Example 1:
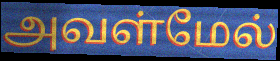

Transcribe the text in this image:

அவள்மேல்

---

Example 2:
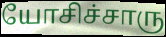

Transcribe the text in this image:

யோசிச்சாரு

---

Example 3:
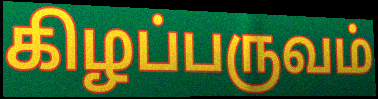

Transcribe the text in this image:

கிழப்பருவம்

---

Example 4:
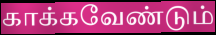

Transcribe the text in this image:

காக்கவேண்டும்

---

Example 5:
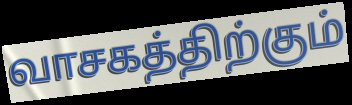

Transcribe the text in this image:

வாசகத்திற்கும்